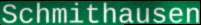
Schmithausen